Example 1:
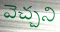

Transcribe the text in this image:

వెచ్చని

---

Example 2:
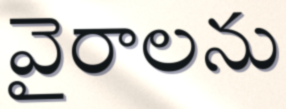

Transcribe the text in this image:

వైరాలను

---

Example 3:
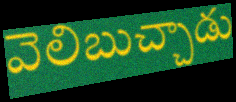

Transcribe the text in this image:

వెలిబుచ్చాడు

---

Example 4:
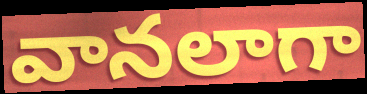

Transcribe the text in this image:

వానలాగా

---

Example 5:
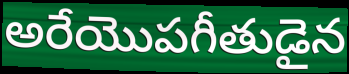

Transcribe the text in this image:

అరేయొపగీతుడైన